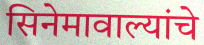
सिनेमावाल्यांचे